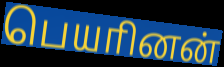
பெயரினன்